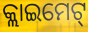
କ୍ଲାଇମେଟ୍